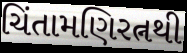
ચિંતામણિરત્નથી